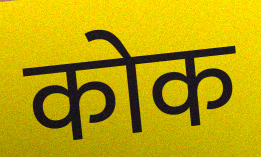
कोक